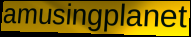
amusingplanet